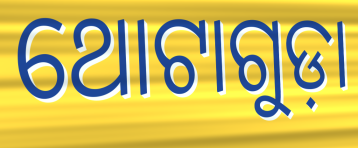
ଥୋଟାଗୁଡ଼ା